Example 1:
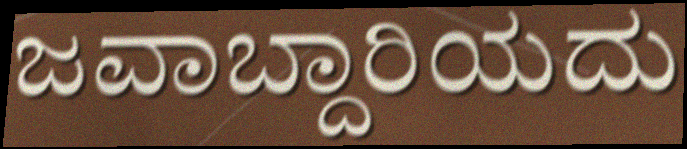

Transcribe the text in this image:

ಜವಾಬ್ದಾರಿಯದು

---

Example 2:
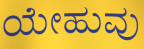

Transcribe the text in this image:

ಯೇಹುವು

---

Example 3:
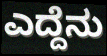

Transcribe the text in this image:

ಎದ್ದೆನು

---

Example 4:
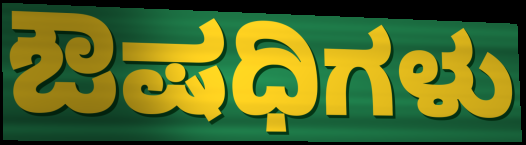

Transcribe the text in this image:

ಔಷಧಿಗಳು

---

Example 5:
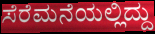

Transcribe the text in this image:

ಸೆರೆಮನೆಯಲ್ಲಿದ್ದು